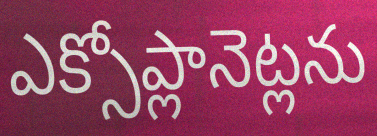
ఎక్సోప్లానెట్లను